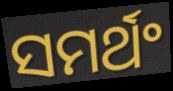
ସମର୍ଥଂ